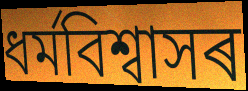
ধৰ্মবিশ্বাসৰ